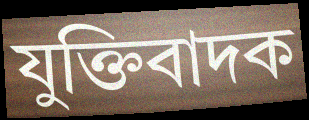
যুক্তিবাদক